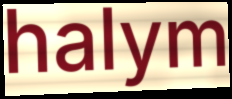
halym